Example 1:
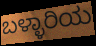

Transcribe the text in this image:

ಬಳ್ಳಾರಿಯ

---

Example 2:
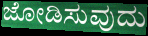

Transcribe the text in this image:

ಜೋಡಿಸುವುದು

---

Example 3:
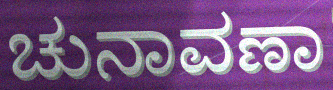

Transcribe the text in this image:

ಚುನಾವಣಾ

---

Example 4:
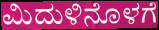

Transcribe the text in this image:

ಮಿದುಳಿನೊಳಗೆ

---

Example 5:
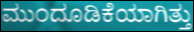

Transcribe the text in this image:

ಮುಂದೂಡಿಕೆಯಾಗಿತ್ತು